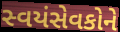
સ્વયંસેવકોને